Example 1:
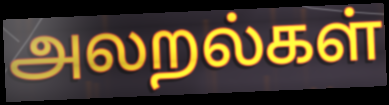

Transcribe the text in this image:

அலறல்கள்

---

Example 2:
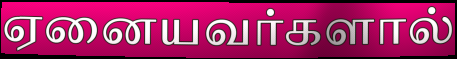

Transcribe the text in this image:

ஏனையவர்களால்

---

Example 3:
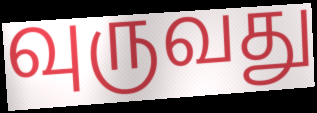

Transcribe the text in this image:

வுருவது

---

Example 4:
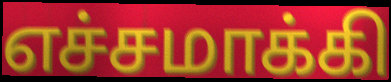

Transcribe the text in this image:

எச்சமாக்கி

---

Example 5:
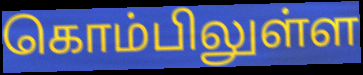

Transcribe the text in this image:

கொம்பிலுள்ள